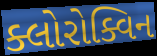
ક્લોરોક્વિન